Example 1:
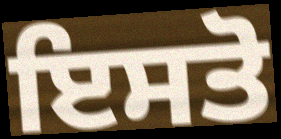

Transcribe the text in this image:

ਇਸਤੋ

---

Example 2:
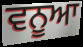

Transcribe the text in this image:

ਵਨੂਆ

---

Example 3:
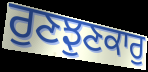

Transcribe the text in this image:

ਰੁਣਝੁਣਕਾਰੁ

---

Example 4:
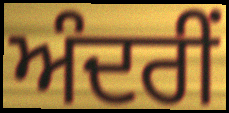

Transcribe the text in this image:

ਅੰਦਰੀਂ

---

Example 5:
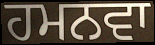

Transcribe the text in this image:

ਹਮਨਵਾ